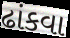
ઢાંકવા